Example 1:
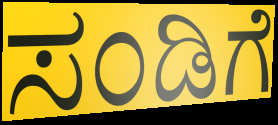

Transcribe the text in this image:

ಸಂಡಿಗೆ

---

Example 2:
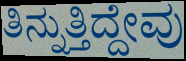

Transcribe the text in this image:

ತಿನ್ನುತ್ತಿದ್ದೇವು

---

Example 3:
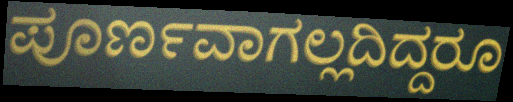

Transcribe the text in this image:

ಪೂರ್ಣವಾಗಲ್ಲದಿದ್ದರೂ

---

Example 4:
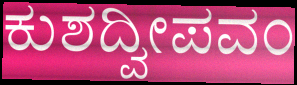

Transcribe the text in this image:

ಕುಶದ್ವೀಪವಂ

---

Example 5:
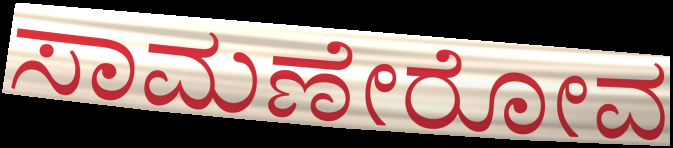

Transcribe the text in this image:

ಸಾಮಣೇರೋವ